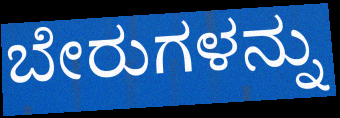
ಬೇರುಗಳನ್ನು